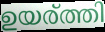
ഉയര്ത്തി